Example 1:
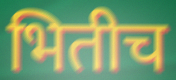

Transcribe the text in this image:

भितीच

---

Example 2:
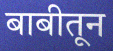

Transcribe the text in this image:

बाबीतून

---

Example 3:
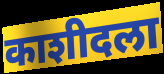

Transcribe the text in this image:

काशीदला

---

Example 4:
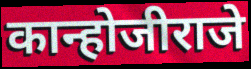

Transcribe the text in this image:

कान्होजीराजे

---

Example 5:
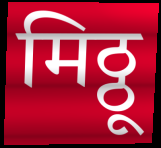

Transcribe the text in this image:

मिठ्ठू